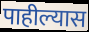
पाहील्यास